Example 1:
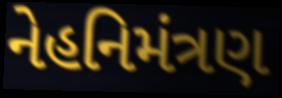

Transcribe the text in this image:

નેહનિમંત્રણ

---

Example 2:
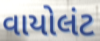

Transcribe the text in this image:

વાયોલંટ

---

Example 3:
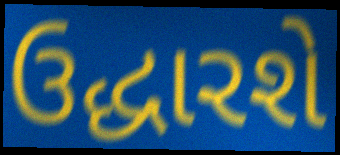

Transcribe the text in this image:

ઉદ્ધારશે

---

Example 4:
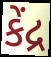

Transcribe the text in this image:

કેંદ્ર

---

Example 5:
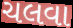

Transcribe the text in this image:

ચલવા